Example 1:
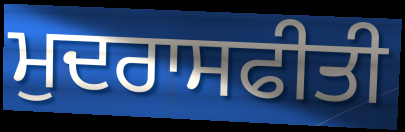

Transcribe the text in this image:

ਮੁਦਰਾਸਫੀਤੀ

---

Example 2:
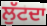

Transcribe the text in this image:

ਲੁੱਟਦਾ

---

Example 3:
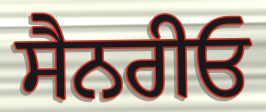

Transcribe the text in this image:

ਸੈਨਰੀਓ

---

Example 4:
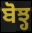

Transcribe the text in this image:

ਬੋਝ੍ਹ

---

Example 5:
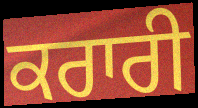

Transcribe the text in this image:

ਕਰਾਰੀ